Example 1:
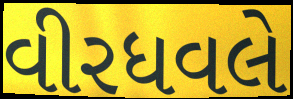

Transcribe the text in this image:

વીરધવલે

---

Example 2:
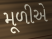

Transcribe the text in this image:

મૂળીએ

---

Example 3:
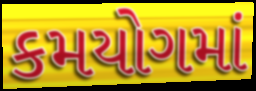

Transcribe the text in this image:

કમયોગમાં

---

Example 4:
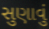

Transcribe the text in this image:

સુણાવું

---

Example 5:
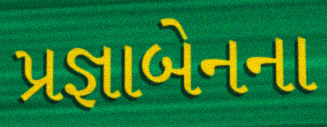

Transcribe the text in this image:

પ્રજ્ઞાબેનના